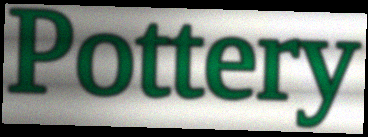
Pottery